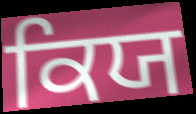
ਕਿਯ